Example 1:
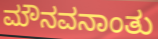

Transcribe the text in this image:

ಮೌನವನಾಂತು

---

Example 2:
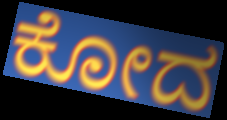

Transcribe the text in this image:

ಕೋದ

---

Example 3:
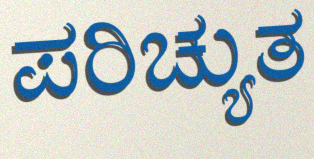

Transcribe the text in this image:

ಪರಿಚ್ಯುತ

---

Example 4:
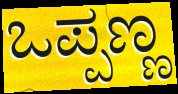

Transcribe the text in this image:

ಒಪ್ಪಣ್ಣ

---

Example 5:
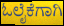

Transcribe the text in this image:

ಓಲೈಕೆಗಾಗಿ